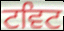
ਟਵਿਟ